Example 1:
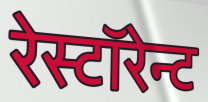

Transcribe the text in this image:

रेस्टॉरेन्ट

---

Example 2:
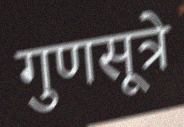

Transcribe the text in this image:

गुणसूत्रे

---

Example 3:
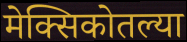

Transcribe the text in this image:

मेक्सिकोतल्या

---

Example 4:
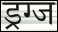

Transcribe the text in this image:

ड्रग्ज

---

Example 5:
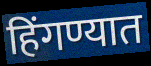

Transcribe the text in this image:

हिंगण्यात